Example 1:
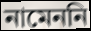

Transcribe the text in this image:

নামেননি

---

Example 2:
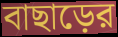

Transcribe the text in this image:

বাছাড়ের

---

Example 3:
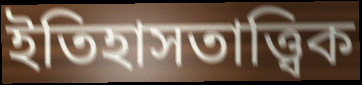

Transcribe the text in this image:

ইতিহাসতাত্ত্বিক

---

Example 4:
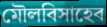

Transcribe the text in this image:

মৌলবিসাহেব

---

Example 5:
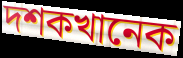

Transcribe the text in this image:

দশকখানেক